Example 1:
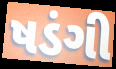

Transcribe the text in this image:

ષડંગી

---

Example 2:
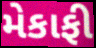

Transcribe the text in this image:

મેકાફી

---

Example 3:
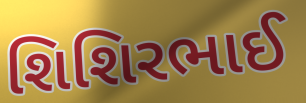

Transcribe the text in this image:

શિશિરભાઈ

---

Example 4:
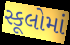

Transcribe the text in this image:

સ્કૂલોમાં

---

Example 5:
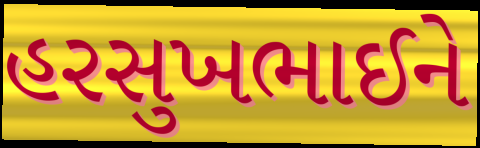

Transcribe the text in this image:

હરસુખભાઈને